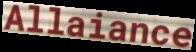
Allaiance